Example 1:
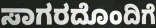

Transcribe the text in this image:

ಸಾಗರದೊಂದಿಗೆ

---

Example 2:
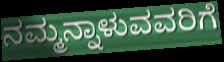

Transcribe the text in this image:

ನಮ್ಮನ್ನಾಳುವವರಿಗೆ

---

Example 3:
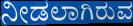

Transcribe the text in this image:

ನೀಡಲಾಗಿರುವ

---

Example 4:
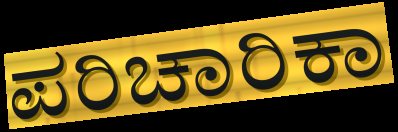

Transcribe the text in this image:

ಪರಿಚಾರಿಕಾ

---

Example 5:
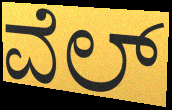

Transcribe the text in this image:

ವೆಲ್